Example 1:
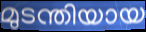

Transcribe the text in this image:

മുടന്തിയായ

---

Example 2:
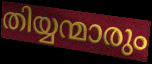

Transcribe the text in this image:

തിയ്യന്മാരും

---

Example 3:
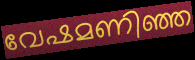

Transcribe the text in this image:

വേഷമണിഞ്ഞ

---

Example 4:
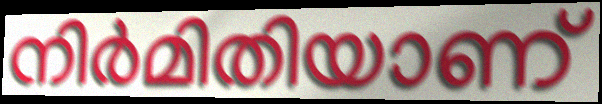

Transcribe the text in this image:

നിർമിതിയാണ്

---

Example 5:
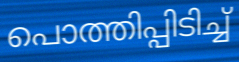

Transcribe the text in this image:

പൊത്തിപ്പിടിച്ച്